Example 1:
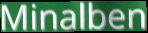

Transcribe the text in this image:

Minalben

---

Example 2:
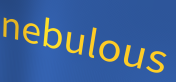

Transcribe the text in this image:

nebulous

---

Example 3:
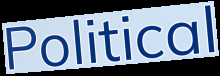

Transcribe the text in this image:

Political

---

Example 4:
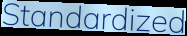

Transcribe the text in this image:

Standardized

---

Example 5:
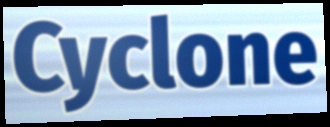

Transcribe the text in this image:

Cyclone